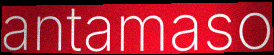
antamaso